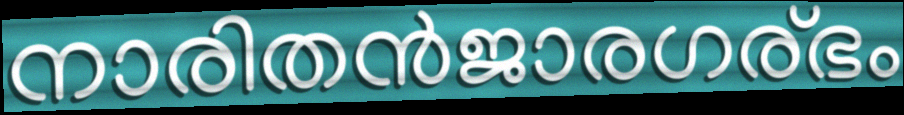
നാരിതൻജാരഗര്ഭം